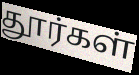
தூர்கள்